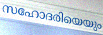
സഹോദരിയെയും